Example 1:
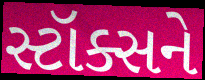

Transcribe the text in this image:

સ્ટૉક્સને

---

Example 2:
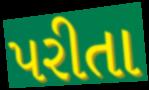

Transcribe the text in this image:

પરીતા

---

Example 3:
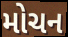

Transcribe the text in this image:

મોચન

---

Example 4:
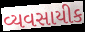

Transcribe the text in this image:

વ્યવસાયીક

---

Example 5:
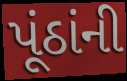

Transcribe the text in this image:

પૂંઠાંની